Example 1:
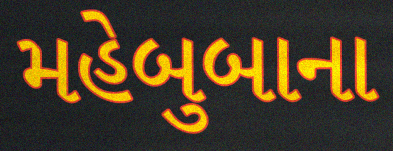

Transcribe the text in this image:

મહેબુબાના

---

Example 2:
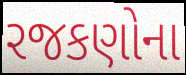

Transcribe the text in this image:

રજકણોના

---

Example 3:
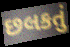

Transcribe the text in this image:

છલકતું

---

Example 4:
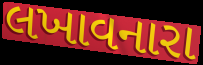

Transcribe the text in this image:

લખાવનારા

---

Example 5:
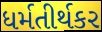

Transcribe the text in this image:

ધર્મતીર્થકર